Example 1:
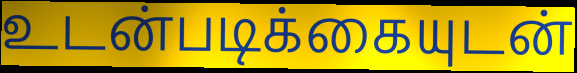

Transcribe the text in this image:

உடன்படிக்கையுடன்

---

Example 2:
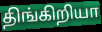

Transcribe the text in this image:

திங்கிறியா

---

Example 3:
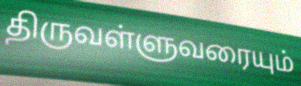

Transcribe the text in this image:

திருவள்ளுவரையும்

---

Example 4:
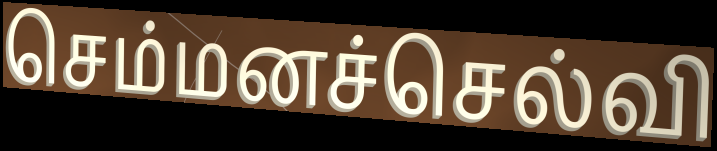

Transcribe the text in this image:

செம்மனச்செல்வி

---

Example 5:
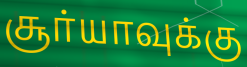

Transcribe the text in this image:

சூர்யாவுக்கு